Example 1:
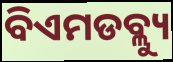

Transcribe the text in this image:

ବିଏମଡବ୍ଲ୍ୟୁ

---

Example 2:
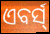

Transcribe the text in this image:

ଏବର୍ସ୍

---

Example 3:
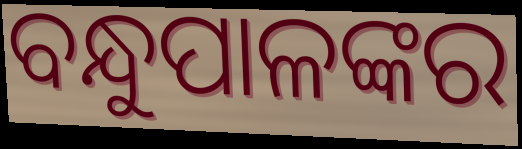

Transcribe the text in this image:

ବନ୍ଧୁପାଳଙ୍କର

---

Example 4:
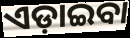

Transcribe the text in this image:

ଏଡ଼ାଇବା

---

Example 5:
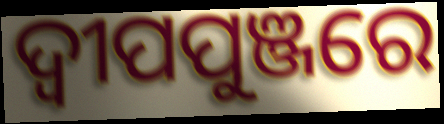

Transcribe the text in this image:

ଦ୍ବୀପପୁଞ୍ଜରେ